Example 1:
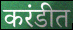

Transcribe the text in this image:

करंडीत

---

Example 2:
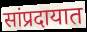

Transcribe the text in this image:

सांप्रदायात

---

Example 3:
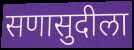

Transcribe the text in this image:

सणासुदीला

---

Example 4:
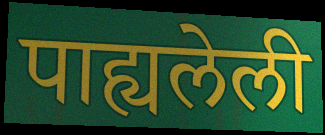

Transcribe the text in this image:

पाह्यलेली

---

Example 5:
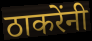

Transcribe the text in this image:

ठाकरेंनी